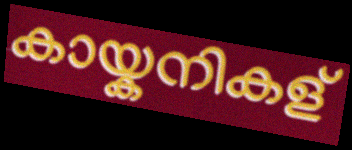
കായ്കനികള്